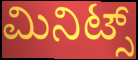
ಮಿನಿಟ್ಸ್